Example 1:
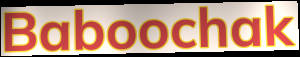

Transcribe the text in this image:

Baboochak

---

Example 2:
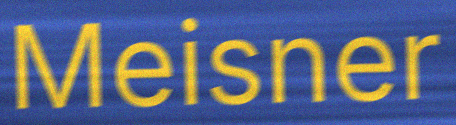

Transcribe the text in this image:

Meisner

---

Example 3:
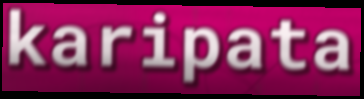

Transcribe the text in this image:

karipata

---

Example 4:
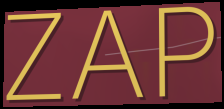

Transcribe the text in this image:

ZAP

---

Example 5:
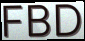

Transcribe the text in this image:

FBD